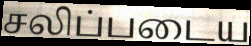
சலிப்படைய